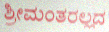
ಶ್ರೀಮಂತರಲ್ಲದ